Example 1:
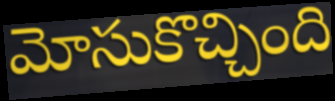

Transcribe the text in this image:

మోసుకొచ్చింది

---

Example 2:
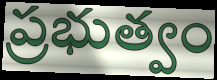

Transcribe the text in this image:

ప్రభుత్వం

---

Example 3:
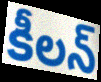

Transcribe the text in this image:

కీలన్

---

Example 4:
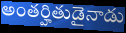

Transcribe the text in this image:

అంతర్హితుడైనాడు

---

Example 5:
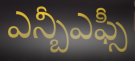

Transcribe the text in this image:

ఎన్బీఎఫ్సీ